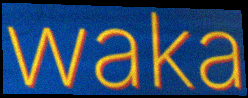
waka